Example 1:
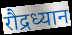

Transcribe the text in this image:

रौद्रध्यान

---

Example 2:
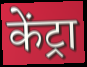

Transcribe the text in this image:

केंट्रा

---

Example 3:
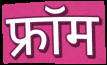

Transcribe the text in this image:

फ्रॉम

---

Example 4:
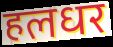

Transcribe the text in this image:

हलधर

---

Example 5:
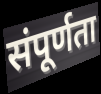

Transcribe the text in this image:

संपूर्णता